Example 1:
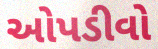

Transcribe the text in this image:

ઓપડીવો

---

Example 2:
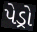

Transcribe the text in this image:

પેડ્રો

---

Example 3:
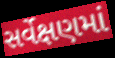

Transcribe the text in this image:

સર્વેક્ષણમાં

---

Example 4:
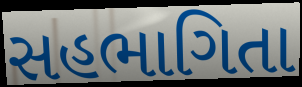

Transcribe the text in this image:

સહભાગિતા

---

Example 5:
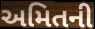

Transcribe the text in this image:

અમિતની